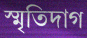
স্মৃতিদাগ